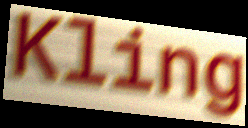
Kling